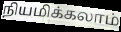
நியமிக்கலாம்